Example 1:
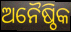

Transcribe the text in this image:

ଅନୈଷ୍ଠିକ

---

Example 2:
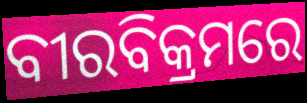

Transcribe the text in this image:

ବୀରବିକ୍ରମରେ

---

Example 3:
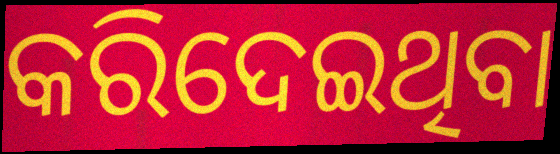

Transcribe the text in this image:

କରିଦେଇଥିବା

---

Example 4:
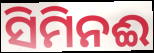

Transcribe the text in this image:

ସିମିନଈ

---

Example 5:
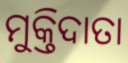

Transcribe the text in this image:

ମୁକ୍ତିଦାତା